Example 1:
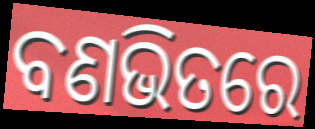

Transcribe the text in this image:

ବଣଭିତରେ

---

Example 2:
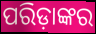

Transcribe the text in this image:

ପରିଡ଼ାଙ୍କର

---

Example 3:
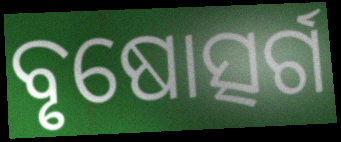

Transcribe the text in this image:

ବୃଷୋତ୍ସର୍ଗ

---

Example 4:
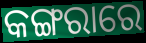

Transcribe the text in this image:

କଙ୍ଗରାରେ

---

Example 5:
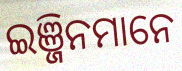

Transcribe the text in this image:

ଇଞ୍ଜିନମାନେ